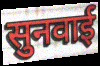
सुनवाई